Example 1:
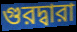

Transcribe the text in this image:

গুরদ্বারা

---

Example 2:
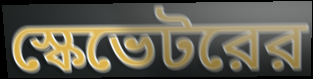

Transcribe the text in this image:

স্কেভেটরের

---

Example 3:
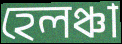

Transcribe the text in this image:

হেলঞ্চা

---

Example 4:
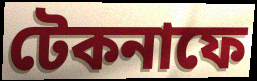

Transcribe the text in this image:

টেকনাফে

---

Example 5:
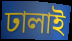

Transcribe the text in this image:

ঢালাই